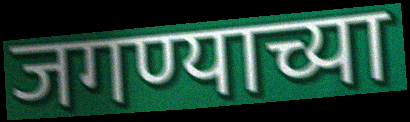
जगण्याच्या